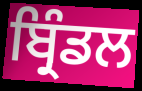
ਬ੍ਰਿੰਡਲ